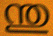
ന്തു